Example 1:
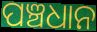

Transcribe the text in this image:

ପଞ୍ଚଧାନ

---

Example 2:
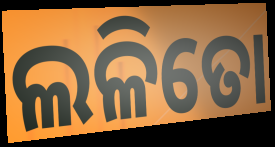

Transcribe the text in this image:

ଲଳିତୋ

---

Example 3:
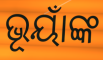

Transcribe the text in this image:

ଭୂୟାଁଙ୍କ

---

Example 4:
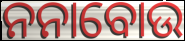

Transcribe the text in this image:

ନନାବୋଉ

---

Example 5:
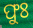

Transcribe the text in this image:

ଫୁଃ